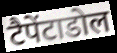
टैपेंटाडोल